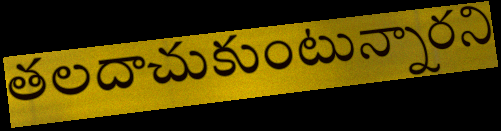
తలదాచుకుంటున్నారని